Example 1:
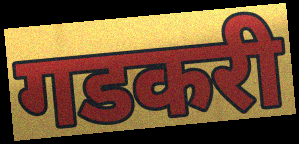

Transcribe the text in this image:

गडकरी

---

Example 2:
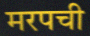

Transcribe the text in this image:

मरपची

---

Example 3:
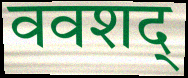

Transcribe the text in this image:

ववशद्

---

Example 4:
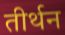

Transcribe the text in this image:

तीर्थन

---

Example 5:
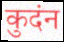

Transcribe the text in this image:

कुदंन